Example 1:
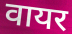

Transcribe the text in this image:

वायर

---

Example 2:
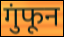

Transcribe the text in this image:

गुंफून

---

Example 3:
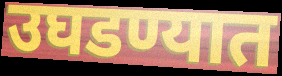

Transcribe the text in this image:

उघडण्यात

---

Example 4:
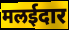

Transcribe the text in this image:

मलईदार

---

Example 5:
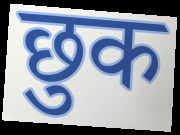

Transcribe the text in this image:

छुक